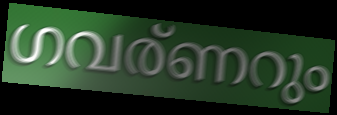
ഗവര്ണറും